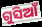
ଗୁସିଆଁ